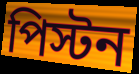
পিস্টন